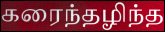
கரைந்தழிந்த